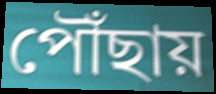
পৌঁছায়